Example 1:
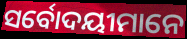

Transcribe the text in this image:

ସର୍ବୋଦୟୀମାନେ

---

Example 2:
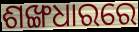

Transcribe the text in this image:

ଶଙ୍ଖଧାରରେ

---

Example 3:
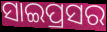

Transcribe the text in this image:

ସାଇପ୍ରସର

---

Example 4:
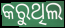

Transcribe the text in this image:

କରୁଥିଲ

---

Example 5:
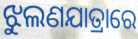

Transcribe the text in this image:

ଝୁଲଣଯାତ୍ରାରେ